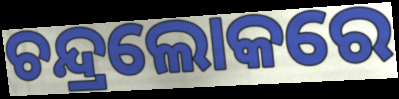
ଚନ୍ଦ୍ରଲୋକରେ